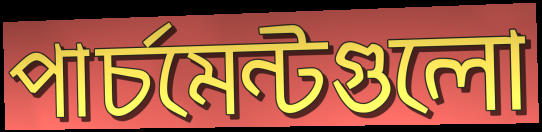
পার্চমেন্টগুলো